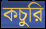
কচুরি